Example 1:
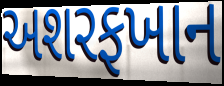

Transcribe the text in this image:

અશરફખાન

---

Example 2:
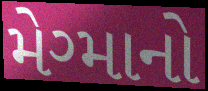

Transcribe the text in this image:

મેગ્માનો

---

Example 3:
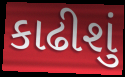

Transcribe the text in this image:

કાઢીશું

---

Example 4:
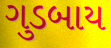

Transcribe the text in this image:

ગુડબાય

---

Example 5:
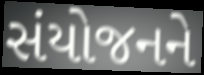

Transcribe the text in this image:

સંયોજનને